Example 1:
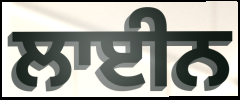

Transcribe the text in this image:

ਲਾਈਨ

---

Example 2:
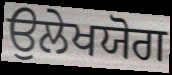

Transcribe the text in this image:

ਉਲੇਖਯੋਗ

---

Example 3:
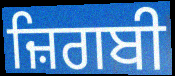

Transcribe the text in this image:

ਜ਼ਿਗਬੀ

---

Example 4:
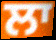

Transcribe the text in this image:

ਲਾ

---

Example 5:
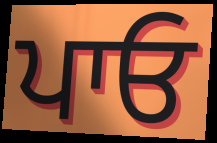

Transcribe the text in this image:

ਪਾਓ